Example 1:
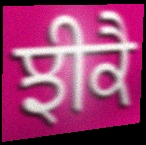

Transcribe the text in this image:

ਝੀਕੈ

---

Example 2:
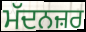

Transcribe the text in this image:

ਮੱਦਨਜ਼ਰ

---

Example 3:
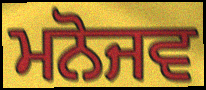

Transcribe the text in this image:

ਮਨੋਜਵ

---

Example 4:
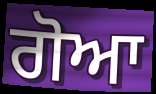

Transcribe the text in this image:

ਗੋਆ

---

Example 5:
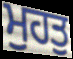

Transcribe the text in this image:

ਮੁਹਤੁ